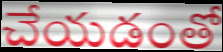
చేయడంతో